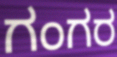
ಗಂಗರ